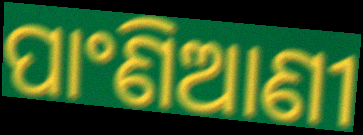
ପାଂଣିଆଣୀ